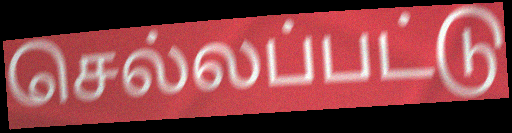
செல்லப்பட்டு